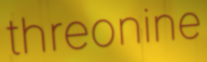
threonine